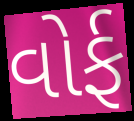
વોર્ફ